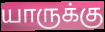
யாருக்கு